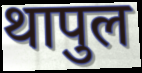
थापुल